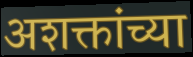
अशक्तांच्या